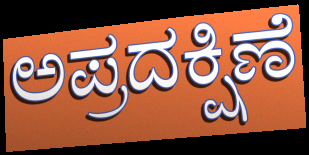
ಅಪ್ರದಕ್ಷಿಣೆ